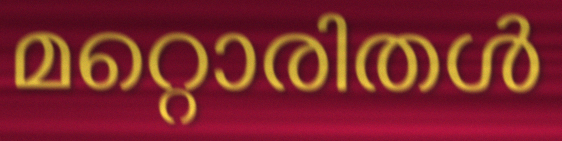
മറ്റൊരിതൾ